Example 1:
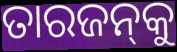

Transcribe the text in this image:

ତାରଜନ୍‌କୁ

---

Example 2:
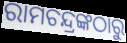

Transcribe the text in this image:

ରାମଚନ୍ଦ୍ରଙ୍କଠାରୁ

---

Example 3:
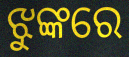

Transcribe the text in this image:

ଝୁଙ୍କରେ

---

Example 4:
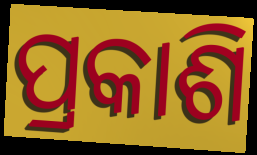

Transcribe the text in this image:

ପ୍ରକାଶି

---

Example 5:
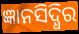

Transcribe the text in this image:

ଜ୍ଞାନସିଦ୍ଧିର